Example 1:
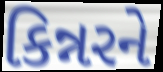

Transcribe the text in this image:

કિન્નરને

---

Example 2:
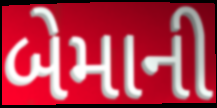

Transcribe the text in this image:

બેમાની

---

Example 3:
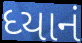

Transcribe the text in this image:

ધ્યાનં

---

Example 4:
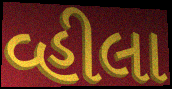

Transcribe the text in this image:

વ્હીલા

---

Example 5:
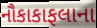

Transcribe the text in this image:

નૌકાકાફલાના